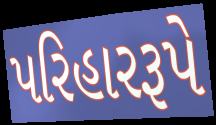
પરિહારરૂપે